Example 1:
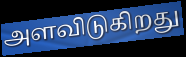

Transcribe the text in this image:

அளவிடுகிறது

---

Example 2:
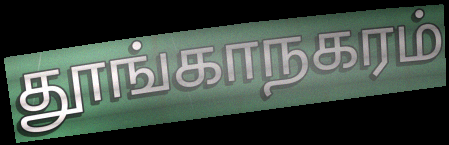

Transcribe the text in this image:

தூங்காநகரம்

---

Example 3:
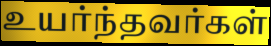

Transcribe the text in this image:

உயர்ந்தவர்கள்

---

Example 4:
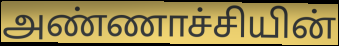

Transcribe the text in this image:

அண்ணாச்சியின்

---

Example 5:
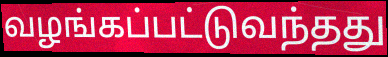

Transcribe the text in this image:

வழங்கப்பட்டுவந்தது